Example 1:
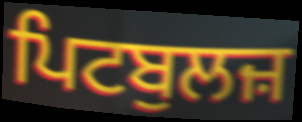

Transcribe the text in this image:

ਪਿਟਬੁਲਜ਼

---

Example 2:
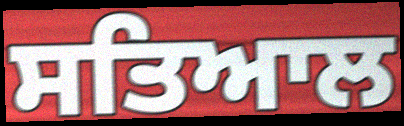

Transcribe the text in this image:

ਸਤਿਆਲ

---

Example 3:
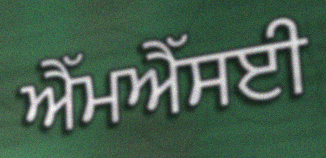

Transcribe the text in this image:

ਐੱਮਐੱਸਈ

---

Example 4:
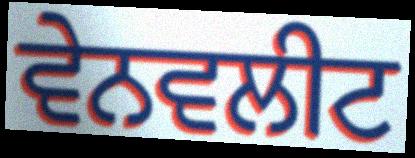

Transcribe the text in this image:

ਵੇਨਵਲੀਟ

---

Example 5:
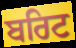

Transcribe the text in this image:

ਬਰਿਟ